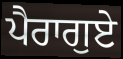
ਪੈਰਾਗੁਏ